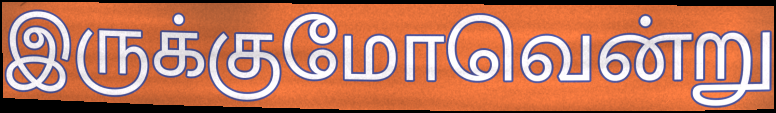
இருக்குமோவென்று